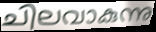
ചിലവാകുന്നു